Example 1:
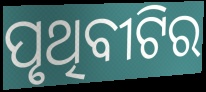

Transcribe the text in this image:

ପୃଥିବୀଟିର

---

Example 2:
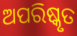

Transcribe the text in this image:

ଅପରିଷ୍କୃତ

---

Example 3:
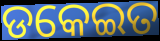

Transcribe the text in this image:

ଡକେଇତ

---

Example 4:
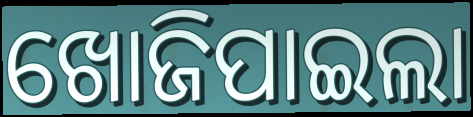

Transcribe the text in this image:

ଖୋଜିପାଇଲା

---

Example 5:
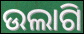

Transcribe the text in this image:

ଉଲାଗି